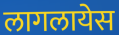
लागलायेस